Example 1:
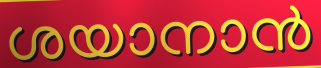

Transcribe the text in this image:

ശയാനാൻ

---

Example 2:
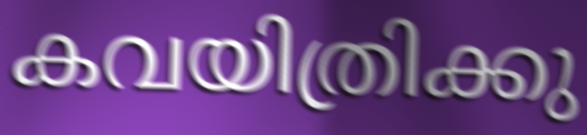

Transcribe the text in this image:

കവയിത്രിക്കു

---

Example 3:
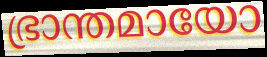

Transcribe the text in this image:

ഭ്രാന്തമായോ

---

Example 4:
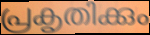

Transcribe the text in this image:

പ്രകൃതിക്കും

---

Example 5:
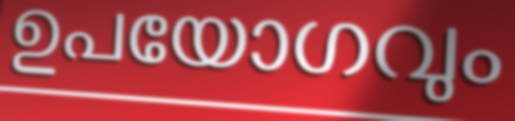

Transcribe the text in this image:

ഉപയോഗവും